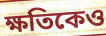
ক্ষতিকেও